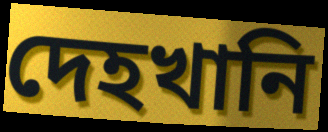
দেহখানি